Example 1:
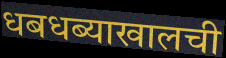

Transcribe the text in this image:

धबधब्याखालची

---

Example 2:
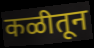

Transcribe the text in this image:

कळीतून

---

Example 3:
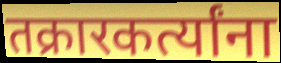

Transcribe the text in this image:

तक्रारकर्त्यांना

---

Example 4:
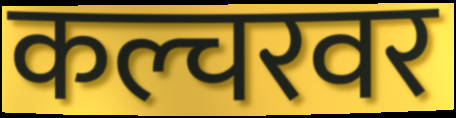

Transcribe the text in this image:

कल्चरवर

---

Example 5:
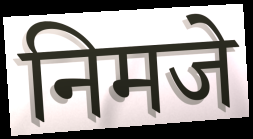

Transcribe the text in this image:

निमजे